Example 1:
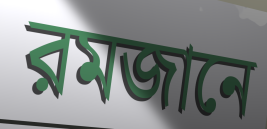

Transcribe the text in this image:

রমজানে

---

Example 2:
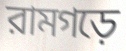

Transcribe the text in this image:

রামগড়ে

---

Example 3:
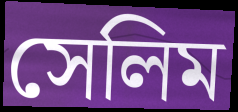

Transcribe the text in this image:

সেলিম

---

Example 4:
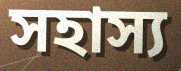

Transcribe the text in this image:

সহাস্য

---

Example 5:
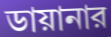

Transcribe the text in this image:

ডায়ানার